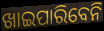
ଖାଇପାରିବେନି